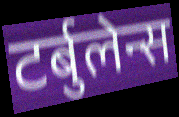
टर्बुलेन्स